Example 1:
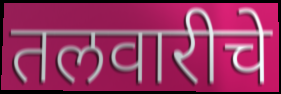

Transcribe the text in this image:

तलवारीचे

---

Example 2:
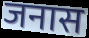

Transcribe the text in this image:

जनास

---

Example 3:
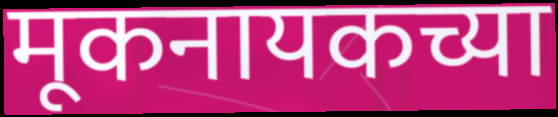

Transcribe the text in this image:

मूकनायकच्या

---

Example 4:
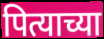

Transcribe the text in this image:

पित्याच्या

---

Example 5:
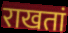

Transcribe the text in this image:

राखतां